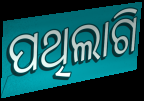
ପଥିଲାଗି